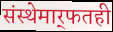
संस्थेमार्फतही